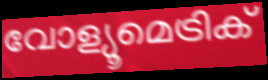
വോള്യൂമെട്രിക്